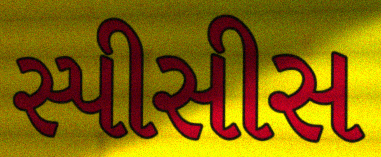
સ્પીસીસ